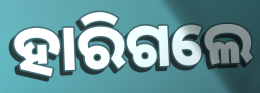
ହାରିଗଲେ